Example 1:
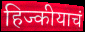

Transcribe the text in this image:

हिज्कीयाचं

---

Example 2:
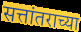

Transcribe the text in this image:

सत्तांतराच्या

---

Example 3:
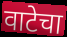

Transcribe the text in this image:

वाटेचा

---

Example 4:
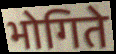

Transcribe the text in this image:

भोगिते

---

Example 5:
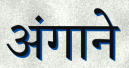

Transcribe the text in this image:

अंगाने